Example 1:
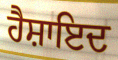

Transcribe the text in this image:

ਹੈਸ਼ਾਇਦ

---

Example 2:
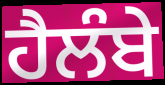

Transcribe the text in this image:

ਹੈਲੰਬੇ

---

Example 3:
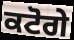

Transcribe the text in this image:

ਕਟੋਗੇ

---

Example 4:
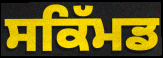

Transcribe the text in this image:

ਸਕਿੱਮਡ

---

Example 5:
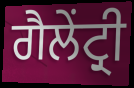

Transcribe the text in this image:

ਗੈਲੇਂਟ੍ਰੀ